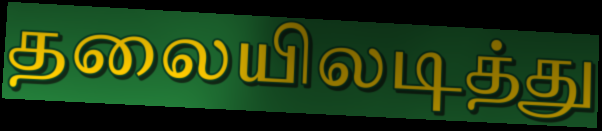
தலையிலடித்து